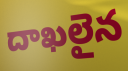
దాఖలైన